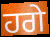
ਹਗੇ